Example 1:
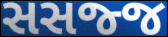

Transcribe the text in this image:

સસજ્જ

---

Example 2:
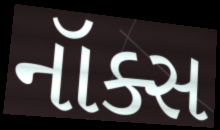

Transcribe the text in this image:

નૉક્સ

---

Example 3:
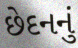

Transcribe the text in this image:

છેદનનું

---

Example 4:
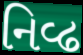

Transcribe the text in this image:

નિવ્ઢ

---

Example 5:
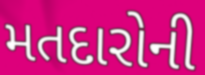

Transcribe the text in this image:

મતદારોની